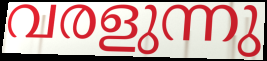
വരളുന്നു